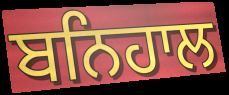
ਬਨਿਹਾਲ